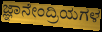
ಜ್ಞಾನೇಂದ್ರಿಯಗಳ